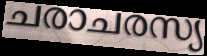
ചരാചരസ്യ